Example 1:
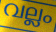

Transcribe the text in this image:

വല്ലം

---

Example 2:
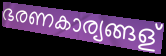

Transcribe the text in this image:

ഭരണകാര്യങ്ങള്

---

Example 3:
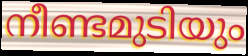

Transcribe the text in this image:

നീണ്ടമുടിയും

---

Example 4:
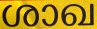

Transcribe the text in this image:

ശാഖ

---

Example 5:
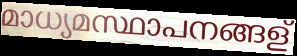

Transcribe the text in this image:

മാധ്യമസ്ഥാപനങ്ങള്